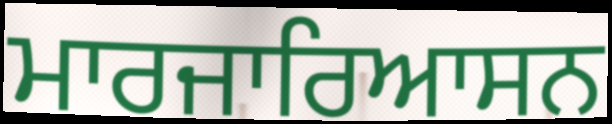
ਮਾਰਜਾਰਿਆਸਨ